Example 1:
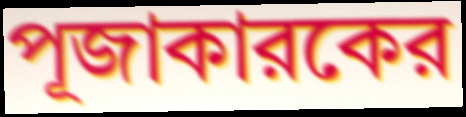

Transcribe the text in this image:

পূজাকারকের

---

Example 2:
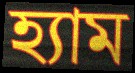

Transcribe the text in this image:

হ্যাম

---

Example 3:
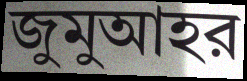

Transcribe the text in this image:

জুমুআহর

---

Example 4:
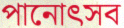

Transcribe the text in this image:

পানোৎসব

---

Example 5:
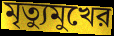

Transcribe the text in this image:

মৃত্যুমুখের